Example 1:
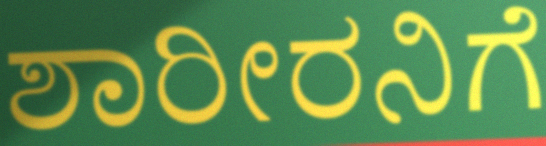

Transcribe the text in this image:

ಶಾರೀರನಿಗೆ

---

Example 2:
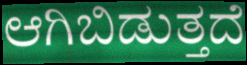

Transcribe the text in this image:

ಆಗಿಬಿಡುತ್ತದೆ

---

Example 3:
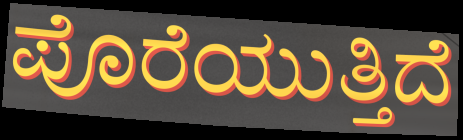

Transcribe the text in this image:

ಪೊರೆಯುತ್ತಿದೆ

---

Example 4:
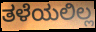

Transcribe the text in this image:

ತಳೆಯಲಿಲ್ಲ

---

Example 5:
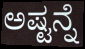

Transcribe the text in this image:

ಅಷ್ಟನ್ನೆ